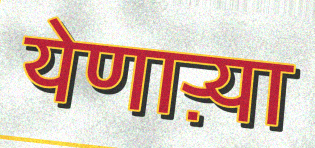
येणाऱ्‍या